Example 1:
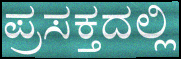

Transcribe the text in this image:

ಪ್ರಸಕ್ತದಲ್ಲಿ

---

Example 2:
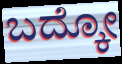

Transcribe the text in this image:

ಬದ್ಕೋ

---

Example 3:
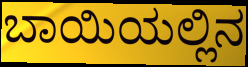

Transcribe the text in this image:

ಬಾಯಿಯಲ್ಲಿನ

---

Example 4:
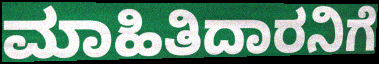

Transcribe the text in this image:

ಮಾಹಿತಿದಾರನಿಗೆ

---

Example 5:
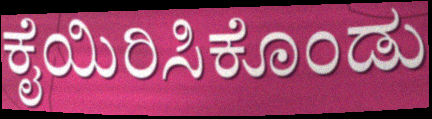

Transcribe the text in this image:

ಕೈಯಿರಿಸಿಕೊಂಡು